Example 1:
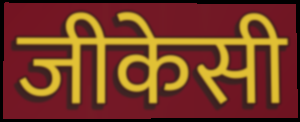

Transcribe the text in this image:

जीकेसी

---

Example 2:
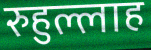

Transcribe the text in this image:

रुहुल्लाह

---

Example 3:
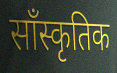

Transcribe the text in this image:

साँस्कृतिक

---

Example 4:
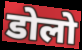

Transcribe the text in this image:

डोलो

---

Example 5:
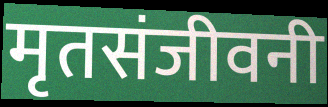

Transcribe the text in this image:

मृतसंजीवनी